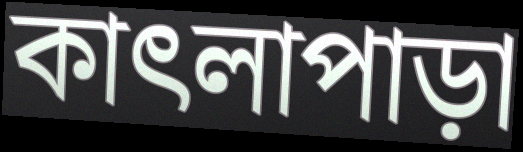
কাৎলাপাড়া